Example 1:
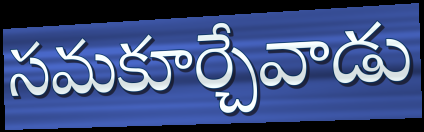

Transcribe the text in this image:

సమకూర్చేవాడు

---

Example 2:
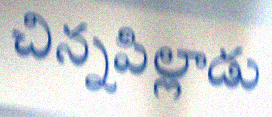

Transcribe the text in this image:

చిన్నపిల్లాడు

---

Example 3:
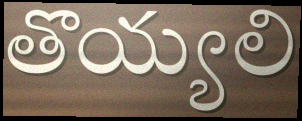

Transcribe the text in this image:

తొయ్యలి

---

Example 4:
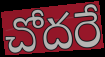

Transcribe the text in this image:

చోదరే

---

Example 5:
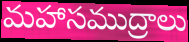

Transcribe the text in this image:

మహాసముద్రాలు